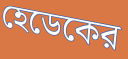
হেডেকের